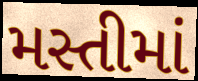
મસ્તીમાં